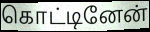
கொட்டினேன்